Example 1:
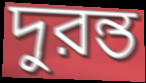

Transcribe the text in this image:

দুরন্ত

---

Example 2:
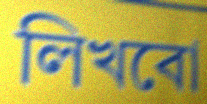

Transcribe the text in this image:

লিখবো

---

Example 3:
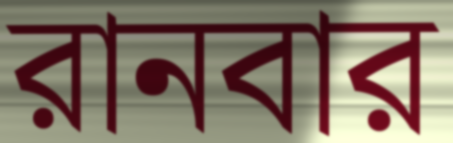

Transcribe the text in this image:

রানবার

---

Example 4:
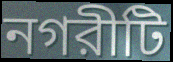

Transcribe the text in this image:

নগরীটি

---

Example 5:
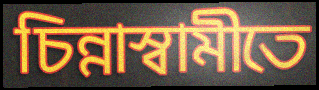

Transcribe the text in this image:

চিন্নাস্বামীতে